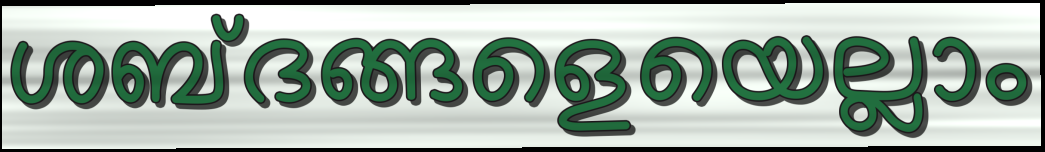
ശബ്ദങ്ങളെയെല്ലാം